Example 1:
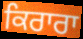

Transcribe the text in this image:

ਕਿਰਾਰਾ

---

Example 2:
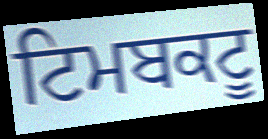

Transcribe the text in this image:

ਟਿਮਬਕਟੂ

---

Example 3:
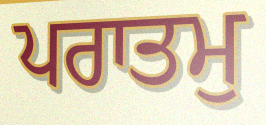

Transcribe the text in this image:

ਪਰਾਤਮੁ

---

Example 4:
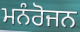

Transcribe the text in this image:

ਮਨੰਰੋਜਨ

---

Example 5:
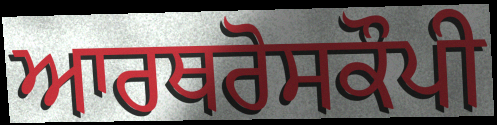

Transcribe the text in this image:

ਆਰਥਰੋਸਕੌਪੀ